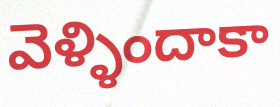
వెళ్ళిందాకా